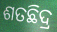
ଶତଛିଦ୍ର